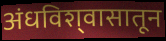
अंधविश्वासातून